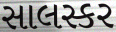
સાલસ્કર